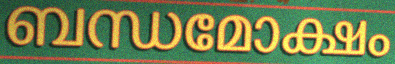
ബന്ധമോക്ഷം